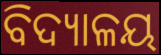
ବିଦ୍ଯାଳୟ